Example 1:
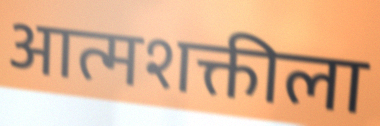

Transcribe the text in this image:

आत्मशक्तीला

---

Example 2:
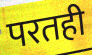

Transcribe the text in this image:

परतही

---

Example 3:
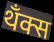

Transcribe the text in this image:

थँक्स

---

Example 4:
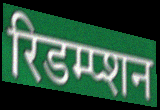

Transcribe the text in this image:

रिडम्प्शन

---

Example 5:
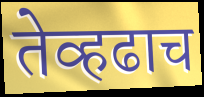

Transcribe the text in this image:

तेव्हढाच